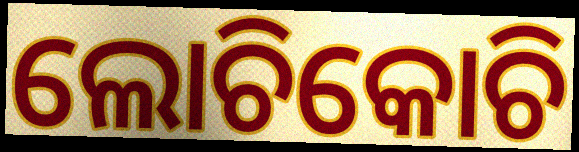
ଲୋଚିକୋଚି